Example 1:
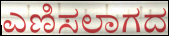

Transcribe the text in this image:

ಎಣಿಸಲಾಗದ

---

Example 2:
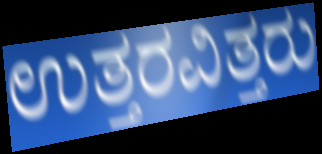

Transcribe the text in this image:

ಉತ್ತರವಿತ್ತರು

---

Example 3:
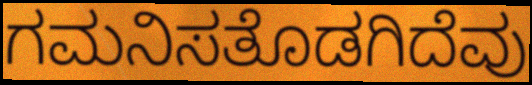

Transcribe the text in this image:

ಗಮನಿಸತೊಡಗಿದೆವು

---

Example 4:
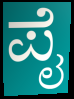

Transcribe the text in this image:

ಪೈ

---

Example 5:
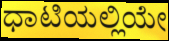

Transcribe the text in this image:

ಧಾಟಿಯಲ್ಲಿಯೇ